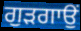
ਗੁੜਗਾਉਂ